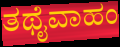
ತಥೈವಾಹಂ